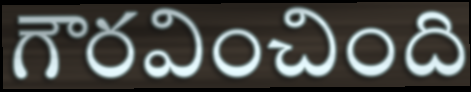
గౌరవించింది